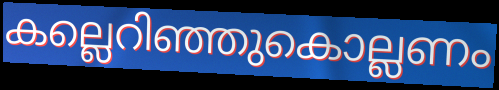
കല്ലെറിഞ്ഞുകൊല്ലണം